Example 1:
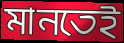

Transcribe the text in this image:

মানতেই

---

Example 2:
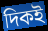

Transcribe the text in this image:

দিকই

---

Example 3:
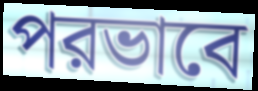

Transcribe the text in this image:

পরভাবে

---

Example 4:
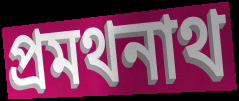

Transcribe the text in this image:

প্রমথনাথ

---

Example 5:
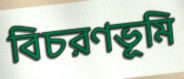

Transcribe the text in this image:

বিচরণভূমি